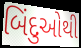
બિંદુઓથી